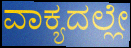
ವಾಕ್ಯದಲ್ಲೇ